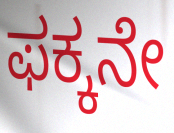
ಫಕ್ಕನೇ